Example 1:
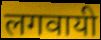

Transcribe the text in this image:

लगवायी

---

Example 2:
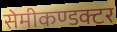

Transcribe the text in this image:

सेमीकण्डक्टर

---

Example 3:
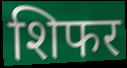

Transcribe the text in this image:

शिफर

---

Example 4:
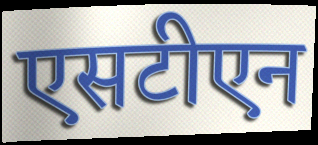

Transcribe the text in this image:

एसटीएन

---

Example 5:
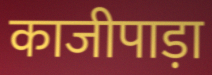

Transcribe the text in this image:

काजीपाड़ा